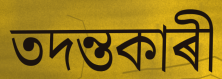
তদন্তকাৰী